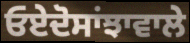
ਓਏਦੋਸਾਂਝਾਵਾਲੇ